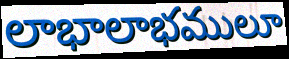
లాభాలాభములూ